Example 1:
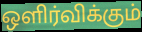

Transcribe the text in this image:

ஒளிர்விக்கும்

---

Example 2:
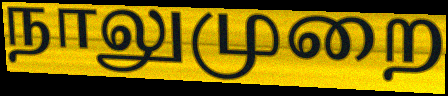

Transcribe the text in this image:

நாலுமுறை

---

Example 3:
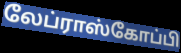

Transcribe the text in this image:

லேப்ராஸ்கோப்பி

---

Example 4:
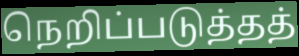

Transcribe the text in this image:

நெறிப்படுத்தத்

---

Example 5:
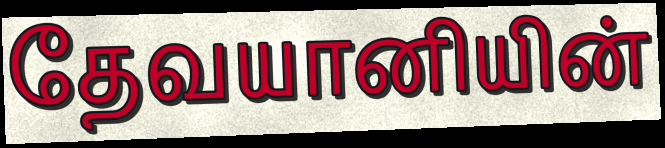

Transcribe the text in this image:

தேவயானியின்